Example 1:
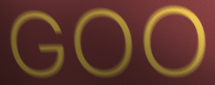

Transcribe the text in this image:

GOO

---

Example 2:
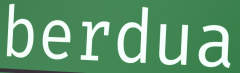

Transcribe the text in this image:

berdua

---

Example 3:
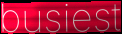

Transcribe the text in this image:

busiest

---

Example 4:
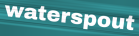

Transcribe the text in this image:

waterspout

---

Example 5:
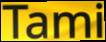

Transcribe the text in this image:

Tami